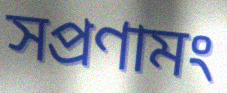
সপ্রণামং